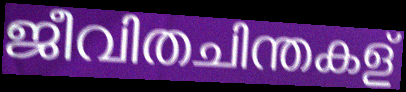
ജീവിതചിന്തകള്